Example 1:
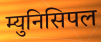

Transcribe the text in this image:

म्युनिसिपल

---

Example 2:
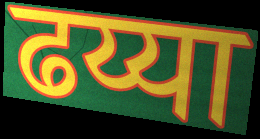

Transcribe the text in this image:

ढय्या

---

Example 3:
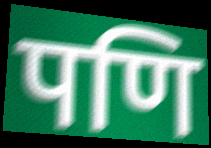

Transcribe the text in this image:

पणि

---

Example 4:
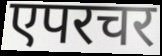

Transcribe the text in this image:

एपरचर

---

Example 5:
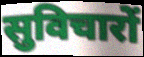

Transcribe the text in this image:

सुविचारों